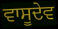
ਵਾਸੂਦੇਵ